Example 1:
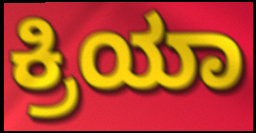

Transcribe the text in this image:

ಕ್ರಿಯಾ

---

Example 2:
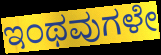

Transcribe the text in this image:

ಇಂಥವುಗಳೇ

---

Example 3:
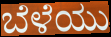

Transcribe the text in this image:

ಬೆಳೆಯು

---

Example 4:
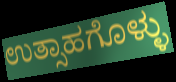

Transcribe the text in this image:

ಉತ್ಸಾಹಗೊಳ್ಳು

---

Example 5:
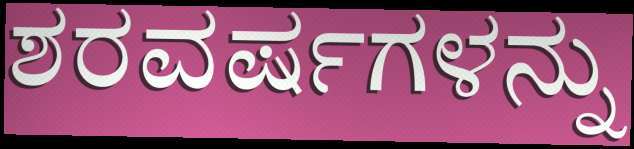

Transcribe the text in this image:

ಶರವರ್ಷಗಳನ್ನು